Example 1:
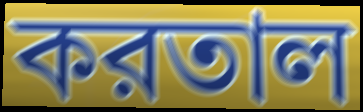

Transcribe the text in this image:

করতাল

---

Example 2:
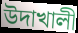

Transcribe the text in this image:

উদাখালী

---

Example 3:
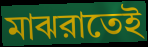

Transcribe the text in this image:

মাঝরাতেই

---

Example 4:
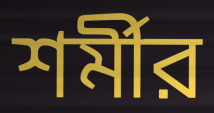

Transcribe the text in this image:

শর্মীর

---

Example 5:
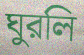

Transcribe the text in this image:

ঘুরলি